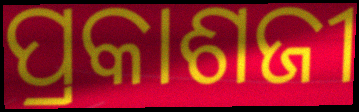
ପ୍ରକାଶଜୀ